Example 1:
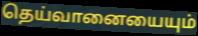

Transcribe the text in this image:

தெய்வானையையும்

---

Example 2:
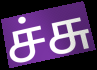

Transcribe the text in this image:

ச்சு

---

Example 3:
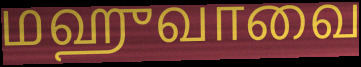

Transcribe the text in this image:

மஹுவாவை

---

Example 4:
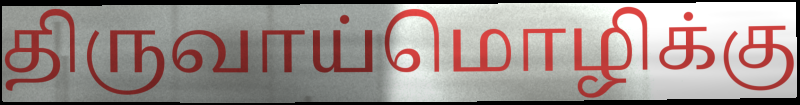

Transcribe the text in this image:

திருவாய்மொழிக்கு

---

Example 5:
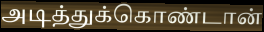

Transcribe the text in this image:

அடித்துக்கொண்டான்